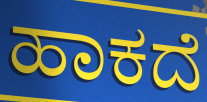
ಹಾಕದೆ